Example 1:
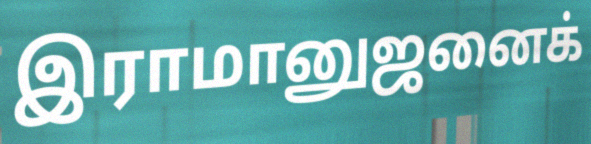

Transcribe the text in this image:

இராமானுஜனைக்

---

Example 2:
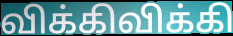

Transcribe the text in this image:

விக்கிவிக்கி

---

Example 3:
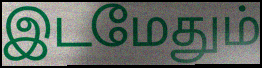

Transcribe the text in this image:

இடமேதும்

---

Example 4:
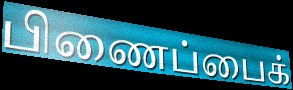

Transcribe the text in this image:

பிணைப்பைக்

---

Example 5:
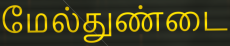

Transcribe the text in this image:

மேல்துண்டை